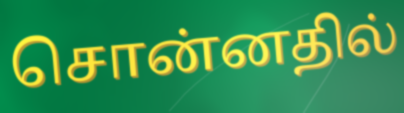
சொன்னதில்